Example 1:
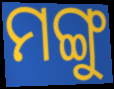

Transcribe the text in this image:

ମଙ୍ଗୁ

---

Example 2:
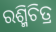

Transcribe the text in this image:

ରଶ୍ମିଚିତ୍ର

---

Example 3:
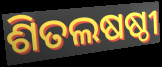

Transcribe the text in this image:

ଶିତଲଷଷ୍ଠୀ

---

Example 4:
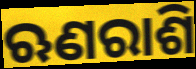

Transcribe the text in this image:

ଋଣରାଶି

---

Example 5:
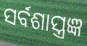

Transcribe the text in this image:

ସର୍ବଶାସ୍ତ୍ରଜ୍ଞ